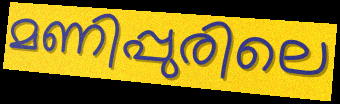
മണിപ്പുരിലെ